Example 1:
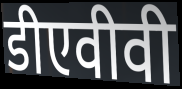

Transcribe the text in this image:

डीएवीवी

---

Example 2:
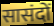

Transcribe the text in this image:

सासंदों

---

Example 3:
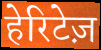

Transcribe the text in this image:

हेरिटेज़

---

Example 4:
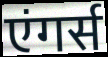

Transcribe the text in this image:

एंगर्स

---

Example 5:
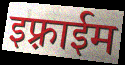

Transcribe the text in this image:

इफ़्राईम